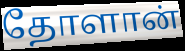
தோளான்